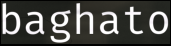
baghato